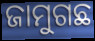
ଜାମୁଗଛ